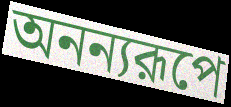
অনন্যরূপে